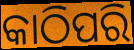
କାଠିପରି